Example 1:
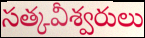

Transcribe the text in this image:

సత్కవీశ్వరులు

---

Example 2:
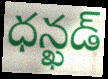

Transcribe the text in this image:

ధన్ఖడ్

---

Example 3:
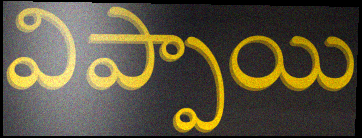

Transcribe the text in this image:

విప్పాయి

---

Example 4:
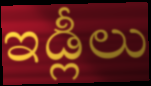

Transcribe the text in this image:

ఇడ్లీలు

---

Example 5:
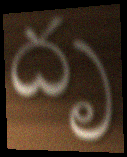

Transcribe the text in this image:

దృ